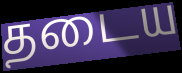
தடைய